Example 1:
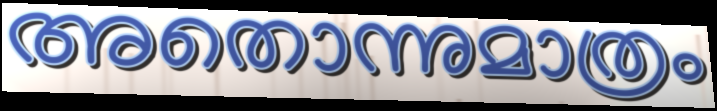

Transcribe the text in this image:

അതൊന്നുമാത്രം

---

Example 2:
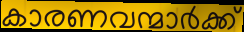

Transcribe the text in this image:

കാരണവന്മാർക്ക്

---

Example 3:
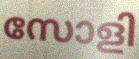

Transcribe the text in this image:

സോളി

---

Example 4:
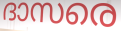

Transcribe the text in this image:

ദാസരെ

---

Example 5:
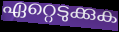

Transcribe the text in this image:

ഏറ്റെടുക്കുക